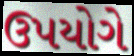
ઉપયોગે